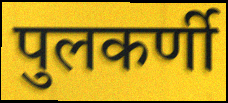
पुलकर्णी